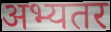
अभ्यतर